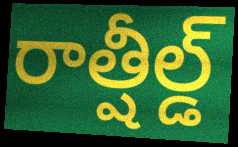
రాత్షీల్డ్